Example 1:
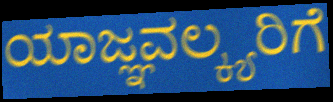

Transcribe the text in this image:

ಯಾಜ್ಞವಲ್ಕ್ಯರಿಗೆ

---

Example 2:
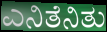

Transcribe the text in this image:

ಎನಿತೆನಿತು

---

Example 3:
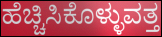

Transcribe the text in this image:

ಹೆಚ್ಚಿಸಿಕೊಳ್ಳುವತ್ತ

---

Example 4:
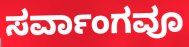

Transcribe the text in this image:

ಸರ್ವಾಂಗವೂ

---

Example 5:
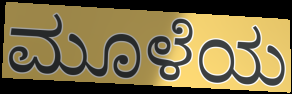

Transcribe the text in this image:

ಮೂಳೆಯ